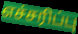
எச்சரிப்பு